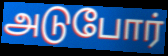
அடுபோர்